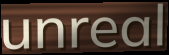
unreal